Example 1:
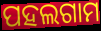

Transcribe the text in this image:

ପହଲଗାମ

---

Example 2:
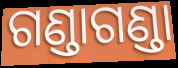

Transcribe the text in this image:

ଗଣ୍ଡାଗଣ୍ଡା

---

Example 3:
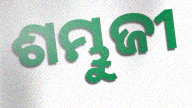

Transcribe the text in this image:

ଶମ୍ଭୁଜୀ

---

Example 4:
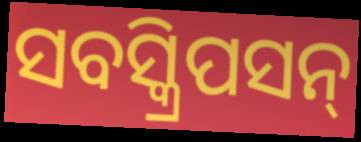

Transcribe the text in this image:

ସବସ୍କ୍ରିପସନ୍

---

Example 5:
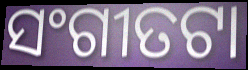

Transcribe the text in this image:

ସଂଗୀତଟା